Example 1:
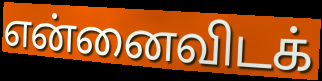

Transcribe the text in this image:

என்னைவிடக்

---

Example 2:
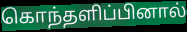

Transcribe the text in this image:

கொந்தளிப்பினால்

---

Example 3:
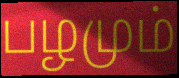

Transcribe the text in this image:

பழமும்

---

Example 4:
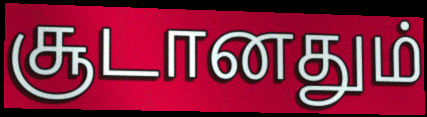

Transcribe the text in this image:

சூடானதும்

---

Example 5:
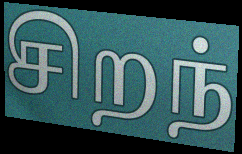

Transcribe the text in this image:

சிறந்